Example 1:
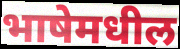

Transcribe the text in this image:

भाषेमधील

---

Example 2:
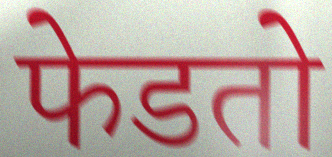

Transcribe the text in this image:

फेडतो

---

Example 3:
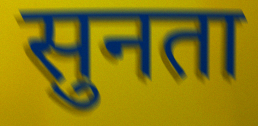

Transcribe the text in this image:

सुनता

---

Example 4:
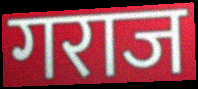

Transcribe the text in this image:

गराज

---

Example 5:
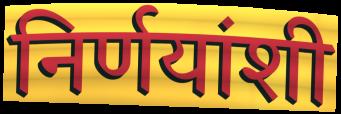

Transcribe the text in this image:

निर्णयांशी